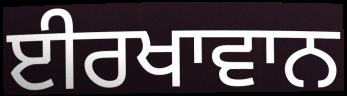
ਈਰਖਾਵਾਨ